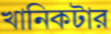
খানিকটার